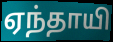
ஏந்தாயி